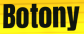
Botony